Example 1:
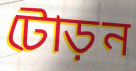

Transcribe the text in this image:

টোড়ন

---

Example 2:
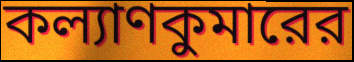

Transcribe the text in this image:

কল্যাণকুমারের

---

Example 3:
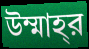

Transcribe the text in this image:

উম্মাহ্‌র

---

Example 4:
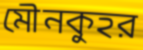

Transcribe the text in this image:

মৌনকুহর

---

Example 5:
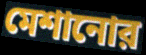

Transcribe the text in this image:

মেশানোর